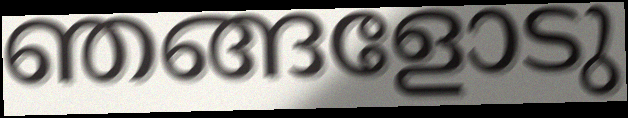
ഞങ്ങളോടു